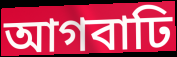
আগবাঢি